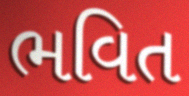
ભવિત